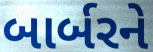
બાર્બરને